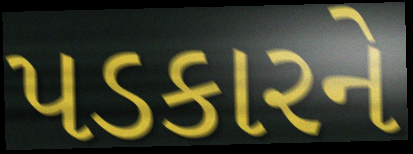
પડકારને